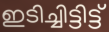
ഇടിച്ചിട്ടിട്ട്